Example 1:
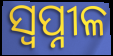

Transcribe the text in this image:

ସ୍ୱପ୍ନୀଳ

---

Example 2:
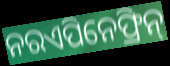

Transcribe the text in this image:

ନରଏପିନେଫ୍ରିନ୍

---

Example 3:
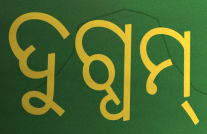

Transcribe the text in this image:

ଦୁଗ୍ଧମ୍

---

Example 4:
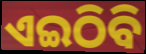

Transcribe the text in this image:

ଏଇଠିବି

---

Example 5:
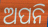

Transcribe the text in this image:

ଅପନି